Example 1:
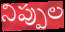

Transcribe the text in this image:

నిప్పుల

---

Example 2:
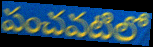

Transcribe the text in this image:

పంచవటిలో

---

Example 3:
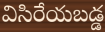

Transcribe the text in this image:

విసిరేయబడ్డ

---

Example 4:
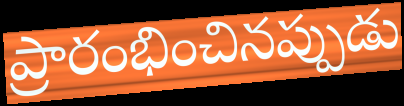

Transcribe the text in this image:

ప్రారంభించినప్పుడు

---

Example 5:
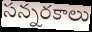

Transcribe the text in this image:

సన్నరకాలు